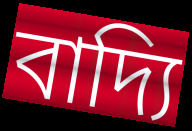
বাদ্যি